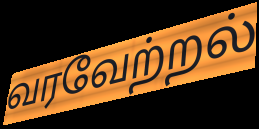
வரவேற்றல்